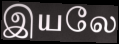
இயலே